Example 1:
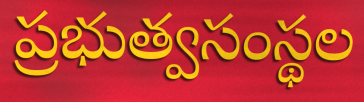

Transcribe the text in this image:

ప్రభుత్వసంస్థల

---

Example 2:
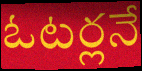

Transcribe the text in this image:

ఓటర్లనే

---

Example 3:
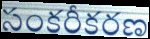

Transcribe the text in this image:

సంకరీకరణ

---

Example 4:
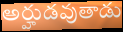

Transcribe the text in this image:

అర్హుడవుతాడు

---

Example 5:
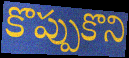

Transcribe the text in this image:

కొప్పుకొని